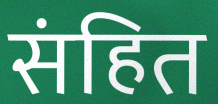
संहित